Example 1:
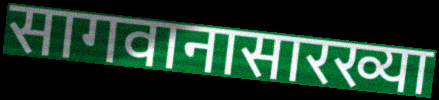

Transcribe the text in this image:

सागवानासारख्या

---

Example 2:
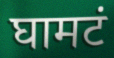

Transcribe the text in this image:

घामटं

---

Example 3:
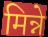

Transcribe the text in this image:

मिन्ने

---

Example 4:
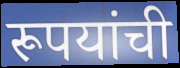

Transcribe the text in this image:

रूपयांची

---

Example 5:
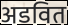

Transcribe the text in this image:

अडवित